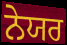
ਨੇਯਰ